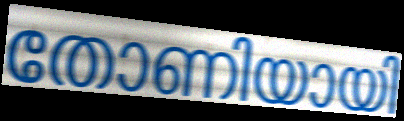
തോണിയായി